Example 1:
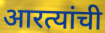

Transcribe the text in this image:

आरत्यांची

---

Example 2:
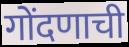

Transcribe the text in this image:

गोंदणाची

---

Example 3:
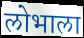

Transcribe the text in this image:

लोभाला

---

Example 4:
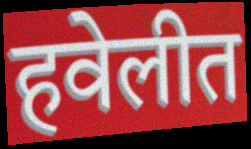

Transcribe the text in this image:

हवेलीत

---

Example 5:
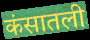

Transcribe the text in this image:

कंसातली